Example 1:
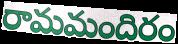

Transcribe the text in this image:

రామమందిరం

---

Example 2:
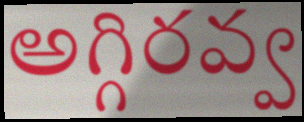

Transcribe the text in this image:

అగ్గిరవ్వ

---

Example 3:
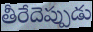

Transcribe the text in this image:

తీరేదెప్పుడు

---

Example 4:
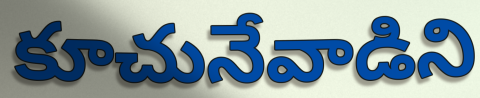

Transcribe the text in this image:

కూచునేవాడిని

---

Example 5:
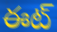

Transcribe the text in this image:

ఈట్